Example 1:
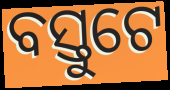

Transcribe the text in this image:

ବସ୍ତୁଟେ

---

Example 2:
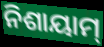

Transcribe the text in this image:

ନିଶାୟାମ୍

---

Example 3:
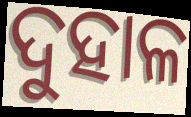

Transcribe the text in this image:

ଦୁହାଳ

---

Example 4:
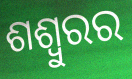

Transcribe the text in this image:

ଶଶ୍ୱୁରର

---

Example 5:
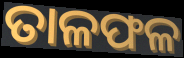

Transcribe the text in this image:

ତାଳଫଳ